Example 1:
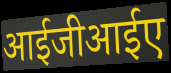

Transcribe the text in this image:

आईजीआईए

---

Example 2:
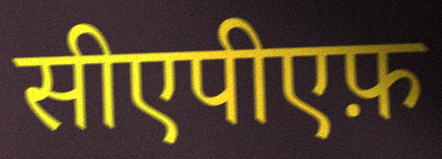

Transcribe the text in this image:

सीएपीएफ़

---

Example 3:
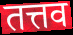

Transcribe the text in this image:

तत्तव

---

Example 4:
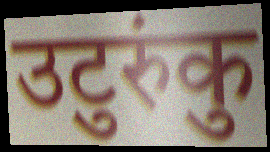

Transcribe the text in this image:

उटुरुंकु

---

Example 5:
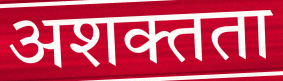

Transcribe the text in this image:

अशक्‍तता